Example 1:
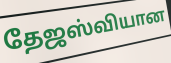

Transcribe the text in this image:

தேஜஸ்வியான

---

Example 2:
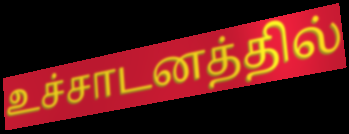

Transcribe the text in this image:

உச்சாடனத்தில்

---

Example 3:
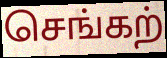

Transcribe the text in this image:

செங்கற்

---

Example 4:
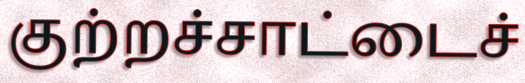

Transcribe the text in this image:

குற்றச்சாட்டைச்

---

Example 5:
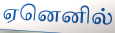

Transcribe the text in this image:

ஏனெனில்